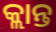
କ୍ଲାନ୍ତ